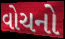
વોચનો